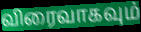
விரைவாகவும்